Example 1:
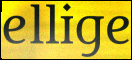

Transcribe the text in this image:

ellige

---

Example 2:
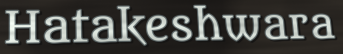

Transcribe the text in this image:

Hatakeshwara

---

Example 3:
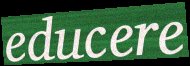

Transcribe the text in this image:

educere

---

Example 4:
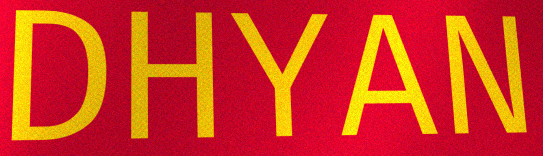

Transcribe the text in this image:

DHYAN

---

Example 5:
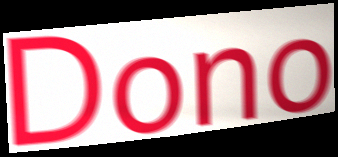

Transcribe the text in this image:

Dono